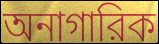
অনাগারিক